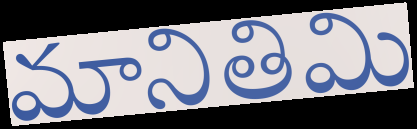
మానితిమి